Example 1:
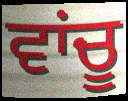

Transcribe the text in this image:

ਵਾਂਚੂ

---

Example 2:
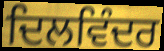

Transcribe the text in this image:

ਦਿਲਵਿੰਦਰ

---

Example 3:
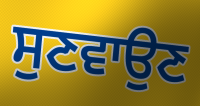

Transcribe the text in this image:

ਸੁਣਵਾਉਣ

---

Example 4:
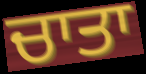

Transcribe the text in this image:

ਚਾਤਾ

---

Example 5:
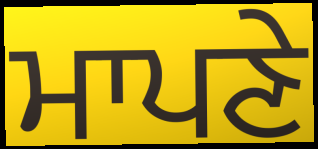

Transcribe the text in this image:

ਮਾਪਣੇ